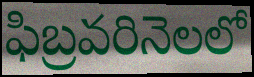
ఫిబ్రవరినెలలో